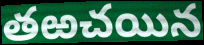
తఱచయిన